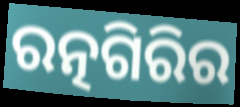
ରତ୍ନଗିରିର